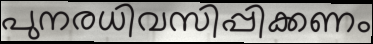
പുനരധിവസിപ്പിക്കണം